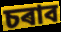
চৰাব